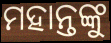
ମହାନ୍ତଙ୍କୁ